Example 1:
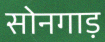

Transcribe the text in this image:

सोनगाड़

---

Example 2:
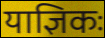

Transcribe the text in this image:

याज्ञिकः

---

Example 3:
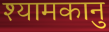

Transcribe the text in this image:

श्यामकानु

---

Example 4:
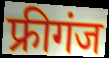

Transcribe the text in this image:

फ्रीगंज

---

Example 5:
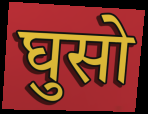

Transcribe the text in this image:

घुसो